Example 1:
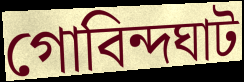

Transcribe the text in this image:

গোবিন্দঘাট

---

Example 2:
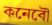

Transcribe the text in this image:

কনেবৌ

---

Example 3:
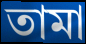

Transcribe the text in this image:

তামা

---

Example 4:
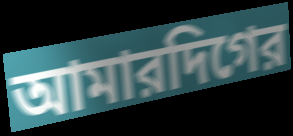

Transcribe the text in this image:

আমারদিগের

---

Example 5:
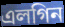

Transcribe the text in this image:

এলগিন